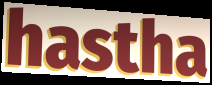
hastha